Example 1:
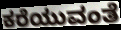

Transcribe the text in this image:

ಕರೆಯುವಂತೆ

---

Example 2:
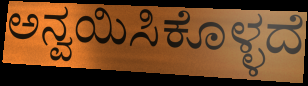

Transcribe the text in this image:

ಅನ್ವಯಿಸಿಕೊಳ್ಳದೆ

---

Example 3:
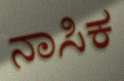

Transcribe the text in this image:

ನಾಸಿಕ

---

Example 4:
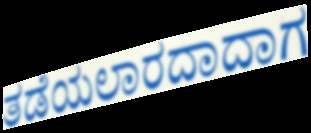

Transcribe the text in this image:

ತಡೆಯಲಾರದಾದಾಗ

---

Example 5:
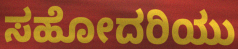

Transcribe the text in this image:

ಸಹೋದರಿಯು